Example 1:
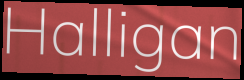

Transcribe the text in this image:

Halligan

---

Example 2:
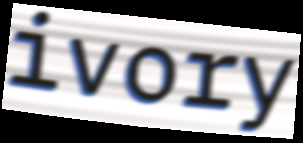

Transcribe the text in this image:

ivory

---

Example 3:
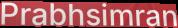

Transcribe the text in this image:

Prabhsimran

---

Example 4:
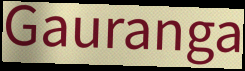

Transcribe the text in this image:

Gauranga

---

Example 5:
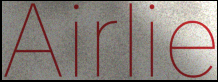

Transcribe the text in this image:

Airlie